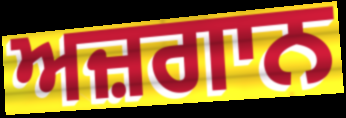
ਅਜ਼ਗਾਨ